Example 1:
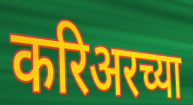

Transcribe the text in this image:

करिअरच्या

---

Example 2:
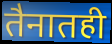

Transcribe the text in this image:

तैनातही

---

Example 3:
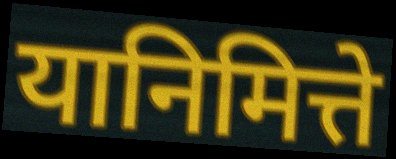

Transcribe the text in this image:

यानिमित्ते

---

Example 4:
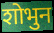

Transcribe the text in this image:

शोभुन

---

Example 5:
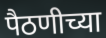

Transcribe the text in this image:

पैठणीच्या